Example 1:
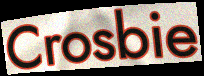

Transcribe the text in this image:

Crosbie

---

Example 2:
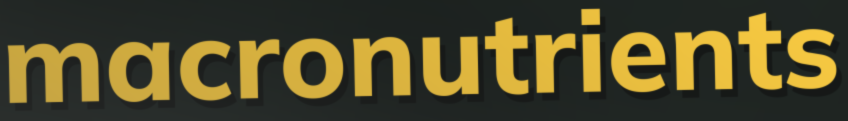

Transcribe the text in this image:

macronutrients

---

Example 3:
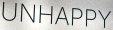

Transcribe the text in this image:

UNHAPPY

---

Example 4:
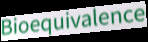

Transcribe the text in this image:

Bioequivalence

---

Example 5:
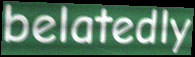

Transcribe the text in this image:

belatedly